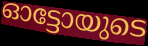
ഓട്ടോയുടെ